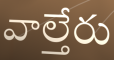
వాల్తేరు